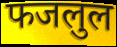
फजलुल